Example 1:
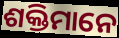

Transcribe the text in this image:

ଶକ୍ତିମାନେ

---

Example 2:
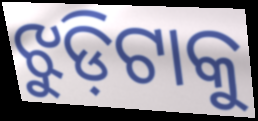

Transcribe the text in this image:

ଝୁଡ଼ିଟାକୁ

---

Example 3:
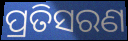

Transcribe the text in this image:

ପ୍ରତିସରଣ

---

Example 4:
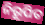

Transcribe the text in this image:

ନିରୂପିତ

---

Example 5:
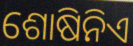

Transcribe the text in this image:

ଶୋଷିନିଏ